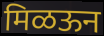
मिळऊन